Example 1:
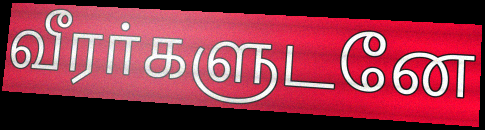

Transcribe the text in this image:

வீரர்களுடனே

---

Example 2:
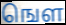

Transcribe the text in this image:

ஙௌ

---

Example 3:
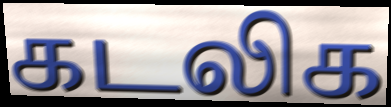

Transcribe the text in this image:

கடலிக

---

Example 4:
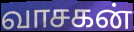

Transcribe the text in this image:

வாசகன்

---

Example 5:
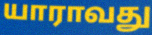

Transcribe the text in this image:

யாராவது